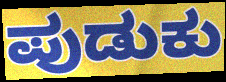
ಪುಡುಕು